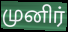
முனிர்